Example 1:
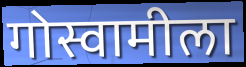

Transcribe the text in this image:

गोस्वामीला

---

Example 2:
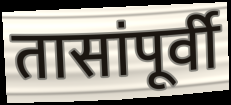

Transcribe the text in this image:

तासांपूर्वी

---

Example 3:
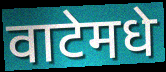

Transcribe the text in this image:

वाटेमधे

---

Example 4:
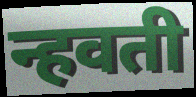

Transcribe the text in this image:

न्हवती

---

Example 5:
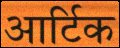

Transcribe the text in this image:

आर्टिक